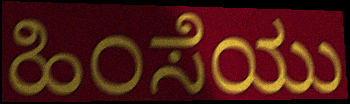
ಹಿಂಸೆಯು